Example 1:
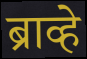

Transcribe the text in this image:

ब्राव्हे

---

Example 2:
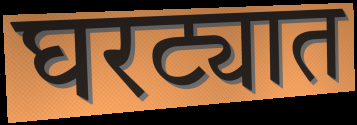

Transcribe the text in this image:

घरट्यात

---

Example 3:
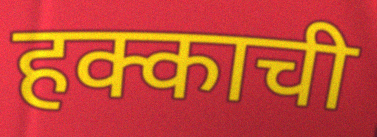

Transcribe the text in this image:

हक्काची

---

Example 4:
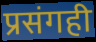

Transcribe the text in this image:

प्रसंगही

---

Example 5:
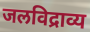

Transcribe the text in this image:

जलविद्राव्य